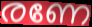
രണേ